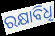
ରକ୍ଷାବିଧି